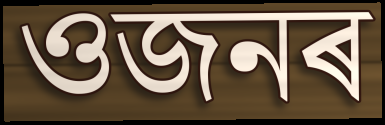
ওজনৰ